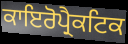
ਕਾਇਰੋਪ੍ਰੈਕਟਿਕ